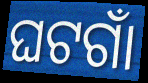
ଘଟଗାଁ